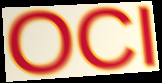
OCI